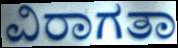
ವಿರಾಗತಾ